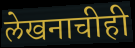
लेखनाचीही